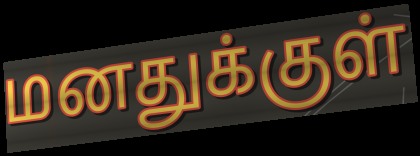
மனதுக்குள்